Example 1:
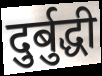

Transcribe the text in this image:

दुर्बुद्धी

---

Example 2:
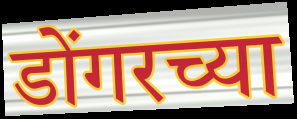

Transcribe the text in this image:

डोंगरच्या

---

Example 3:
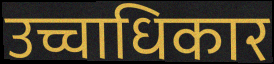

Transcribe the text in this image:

उच्चाधिकार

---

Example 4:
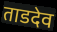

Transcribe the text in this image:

ताडदेव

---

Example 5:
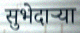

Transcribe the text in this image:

सुभेदाऱ्या